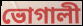
ভোগালী